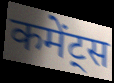
कमेंट्स